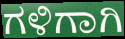
ಗಳಿಗಾಗಿ